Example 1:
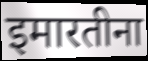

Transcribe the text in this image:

इमारतीना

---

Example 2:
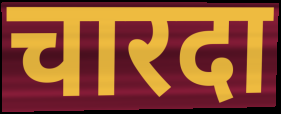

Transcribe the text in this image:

चारदा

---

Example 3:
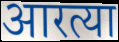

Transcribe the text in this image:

आरत्या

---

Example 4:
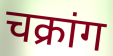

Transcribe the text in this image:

चक्रांग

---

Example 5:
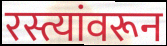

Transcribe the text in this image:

रस्त्यांवरून